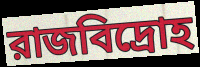
রাজবিদ্রোহ